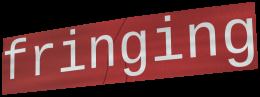
fringing